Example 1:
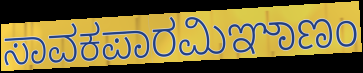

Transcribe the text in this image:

ಸಾವಕಪಾರಮಿಞಾಣಂ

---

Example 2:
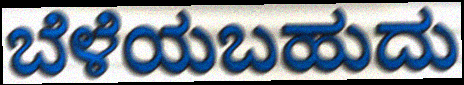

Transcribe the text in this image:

ಬೆಳೆಯಬಹುದು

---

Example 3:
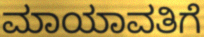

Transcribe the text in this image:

ಮಾಯಾವತಿಗೆ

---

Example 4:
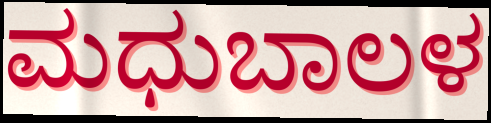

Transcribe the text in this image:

ಮಧುಬಾಲಳ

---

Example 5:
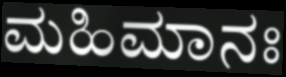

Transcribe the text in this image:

ಮಹಿಮಾನಃ